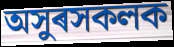
অসুৰসকলক